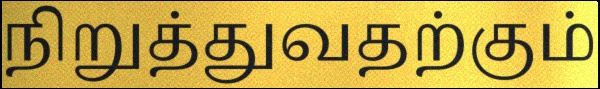
நிறுத்துவதற்கும்